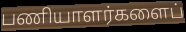
பணியாளர்களைப்